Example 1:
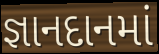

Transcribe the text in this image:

જ્ઞાનદાનમાં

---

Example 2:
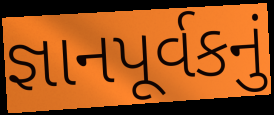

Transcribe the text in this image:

જ્ઞાનપૂર્વકનું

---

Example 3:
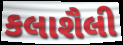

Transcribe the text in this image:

કલાશૈલી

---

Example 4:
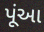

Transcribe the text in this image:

પૂંઆ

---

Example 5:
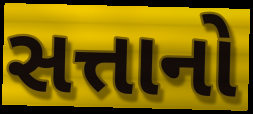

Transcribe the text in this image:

સત્તાનો